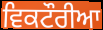
ਵਿਕਟੌਰੀਆ